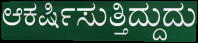
ಆಕರ್ಷಿಸುತ್ತಿದ್ದುದು